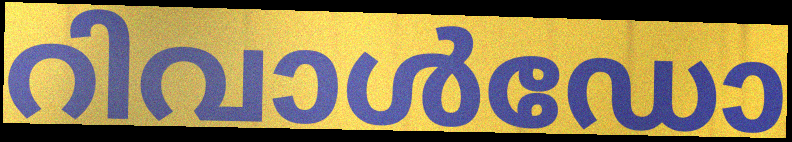
റിവാൾഡോ